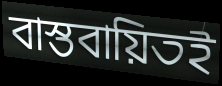
বাস্তবায়িতই